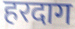
हरदाग